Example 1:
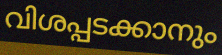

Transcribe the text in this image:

വിശപ്പടക്കാനും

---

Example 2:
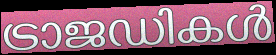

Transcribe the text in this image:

ട്രാജഡികൾ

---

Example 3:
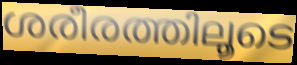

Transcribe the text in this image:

ശരീരത്തിലൂടെ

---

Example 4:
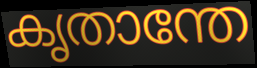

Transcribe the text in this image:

കൃതാന്തേ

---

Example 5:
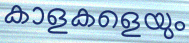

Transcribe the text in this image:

കാളകളെയും